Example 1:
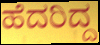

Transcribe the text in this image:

ಹೆದರಿದ್ದ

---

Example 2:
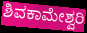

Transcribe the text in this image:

ಶಿವಕಾಮೇಶ್ವರಿ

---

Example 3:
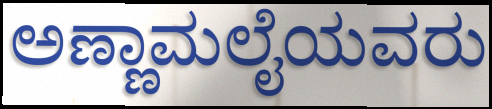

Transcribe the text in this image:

ಅಣ್ಣಾಮಲೈಯವರು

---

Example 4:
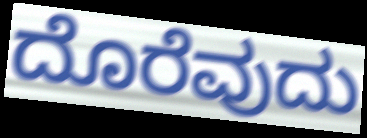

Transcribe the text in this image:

ದೊರೆವುದು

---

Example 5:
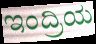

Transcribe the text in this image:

ಇಂದ್ರಿಯ